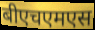
बीएचएमएस